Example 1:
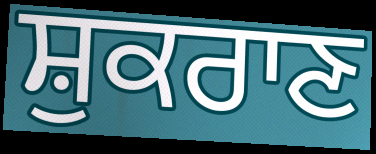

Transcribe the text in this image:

ਸ਼ੁਕਰਾਣ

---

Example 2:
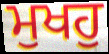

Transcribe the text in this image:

ਮੁਖਹੁ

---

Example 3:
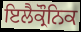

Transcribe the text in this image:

ਇਲੈਕ੍ਰੌਨਿਕ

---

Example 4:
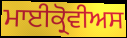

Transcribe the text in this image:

ਮਾਈਕ੍ਰੋਵੀਅਸ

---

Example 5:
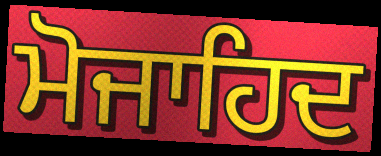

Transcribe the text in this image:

ਮੋਜਾਹਿਦ